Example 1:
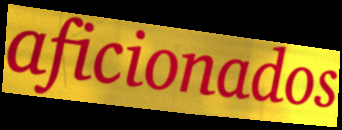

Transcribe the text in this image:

aficionados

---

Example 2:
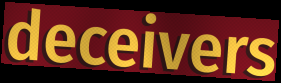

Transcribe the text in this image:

deceivers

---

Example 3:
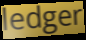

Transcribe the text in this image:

ledger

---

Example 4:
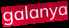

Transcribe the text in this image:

galanya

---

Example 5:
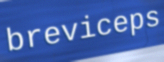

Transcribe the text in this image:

breviceps